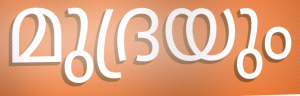
മുദ്രയും